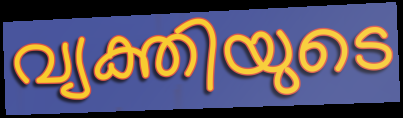
വ്യക്തിയുടെ